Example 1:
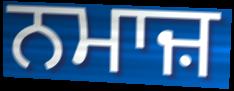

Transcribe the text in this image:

ਨਮਾਜ਼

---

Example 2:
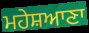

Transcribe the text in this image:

ਮਹੇਸ਼ਆਣਾ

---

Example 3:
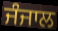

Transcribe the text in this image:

ਜੰਜਾਲ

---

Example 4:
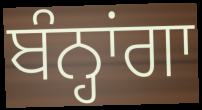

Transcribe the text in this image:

ਬੰਨ੍ਹਾਂਗਾ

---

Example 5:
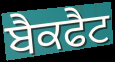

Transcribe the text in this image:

ਬੈਕਫੈਟ